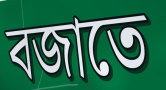
বজাতে